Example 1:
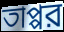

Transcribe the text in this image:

তাপ্পর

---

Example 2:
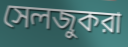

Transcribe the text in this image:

সেলজুকরা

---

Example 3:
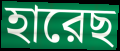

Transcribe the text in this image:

হারেছ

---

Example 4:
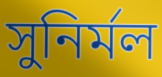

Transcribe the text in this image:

সুনির্মল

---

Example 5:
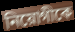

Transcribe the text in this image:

নিয়োগীকে